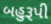
બહુરૂપી